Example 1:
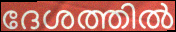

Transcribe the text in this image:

ദേശത്തിൽ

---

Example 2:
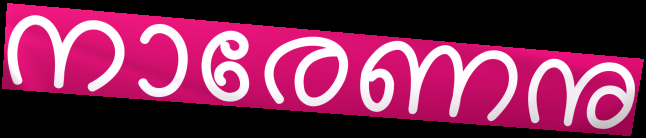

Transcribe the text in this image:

നാരേണനു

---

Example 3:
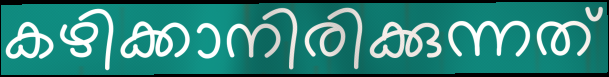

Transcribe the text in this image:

കഴിക്കാനിരിക്കുന്നത്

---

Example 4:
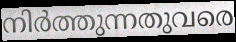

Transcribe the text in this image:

നിർത്തുന്നതുവരെ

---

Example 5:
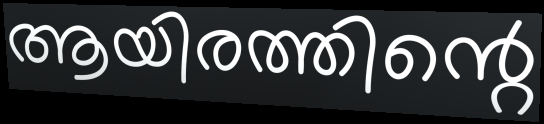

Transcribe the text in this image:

ആയിരത്തിന്റെ